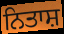
ਨਿਤਾਸ਼